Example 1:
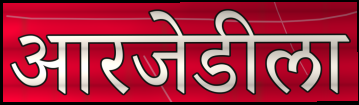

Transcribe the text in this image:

आरजेडीला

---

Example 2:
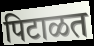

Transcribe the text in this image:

पिटाळत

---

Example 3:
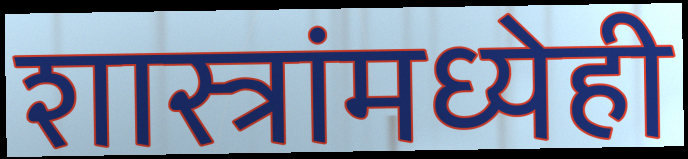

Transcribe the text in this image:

शास्त्रांमध्येही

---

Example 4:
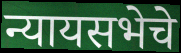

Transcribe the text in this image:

न्यायसभेचे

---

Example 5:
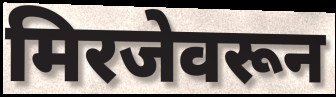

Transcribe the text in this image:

मिरजेवरून